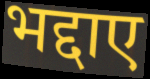
भद्दाए